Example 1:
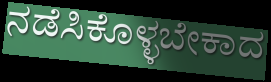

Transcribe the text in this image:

ನಡೆಸಿಕೊಳ್ಳಬೇಕಾದ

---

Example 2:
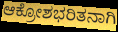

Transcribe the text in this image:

ಆಕ್ರೋಶಭರಿತನಾಗಿ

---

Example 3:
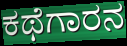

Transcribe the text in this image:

ಕಥೆಗಾರನ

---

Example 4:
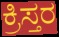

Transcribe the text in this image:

ಕ್ರಿಸ್ತರ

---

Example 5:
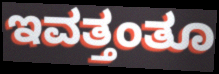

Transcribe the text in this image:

ಇವತ್ತಂತೂ